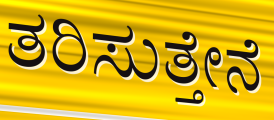
ತರಿಸುತ್ತೇನೆ